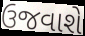
ઉજવાશે